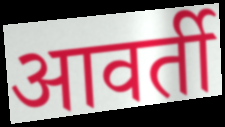
आवर्ती